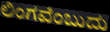
ಲಿಂಗವೆಂಬುದು